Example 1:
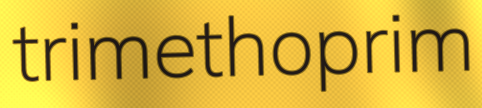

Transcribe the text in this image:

trimethoprim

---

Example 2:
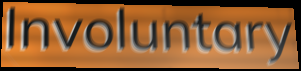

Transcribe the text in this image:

Involuntary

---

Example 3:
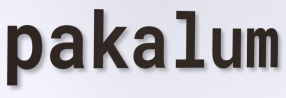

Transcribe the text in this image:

pakalum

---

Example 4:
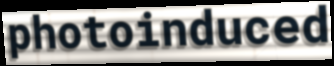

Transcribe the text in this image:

photoinduced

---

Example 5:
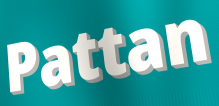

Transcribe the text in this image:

Pattan